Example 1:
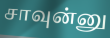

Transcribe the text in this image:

சாவுன்னு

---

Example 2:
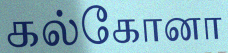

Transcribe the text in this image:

கல்கோனா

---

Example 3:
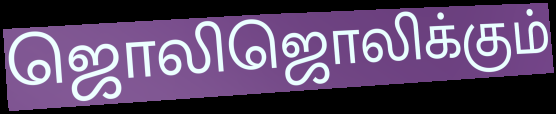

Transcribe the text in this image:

ஜொலிஜொலிக்கும்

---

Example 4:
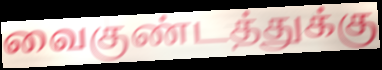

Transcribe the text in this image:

வைகுண்டத்துக்கு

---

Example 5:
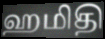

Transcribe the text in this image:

ஹமிதி